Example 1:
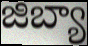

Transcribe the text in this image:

జిబ్యా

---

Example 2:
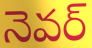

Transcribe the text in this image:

నెవర్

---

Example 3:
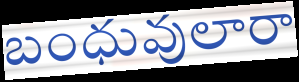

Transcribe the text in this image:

బంధువులారా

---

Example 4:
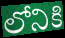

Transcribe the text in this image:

లోనికి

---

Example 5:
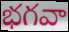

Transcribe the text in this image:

భగవా